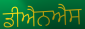
ਡੀਐਨਐਸ